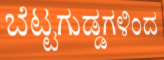
ಬೆಟ್ಟಗುಡ್ಡಗಳಿಂದ